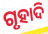
ଗୃହାଦି